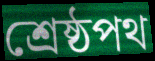
শ্রেষ্ঠপথ